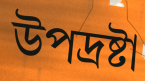
উপদ্রষ্টা